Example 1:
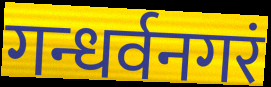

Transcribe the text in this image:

गन्धर्वनगरं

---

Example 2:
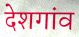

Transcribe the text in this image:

देशगांव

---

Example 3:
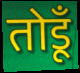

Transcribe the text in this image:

तोडूँ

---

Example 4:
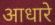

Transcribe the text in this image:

आधारे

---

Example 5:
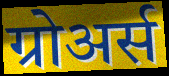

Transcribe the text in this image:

ग्रोअर्स